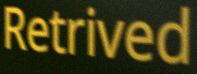
Retrived